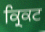
ਕ੍ਰਿਕਟ